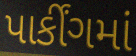
પાર્કીંગમાં